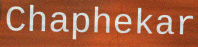
Chaphekar